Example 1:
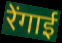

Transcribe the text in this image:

रेंगाई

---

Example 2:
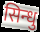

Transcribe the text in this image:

सिन्‍धु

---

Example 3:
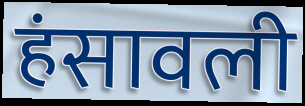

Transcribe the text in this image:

हंसावली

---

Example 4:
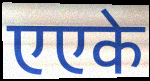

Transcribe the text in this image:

एएके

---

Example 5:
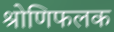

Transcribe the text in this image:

श्रोणिफलक